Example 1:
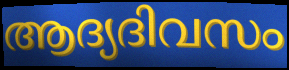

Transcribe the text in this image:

ആദ്യദിവസം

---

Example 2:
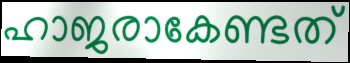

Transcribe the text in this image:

ഹാജരാകേണ്ടത്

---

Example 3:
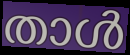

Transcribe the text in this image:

താൾ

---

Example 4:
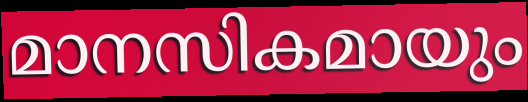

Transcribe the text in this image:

മാനസികമായും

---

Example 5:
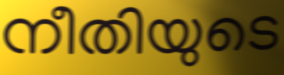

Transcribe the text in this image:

നീതിയുടെ